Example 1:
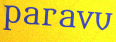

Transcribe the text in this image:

paravu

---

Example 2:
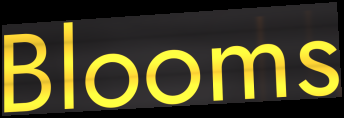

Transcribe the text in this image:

Blooms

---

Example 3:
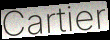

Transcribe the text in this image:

Cartier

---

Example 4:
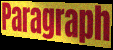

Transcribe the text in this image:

Paragraph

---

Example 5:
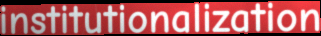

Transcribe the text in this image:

institutionalization